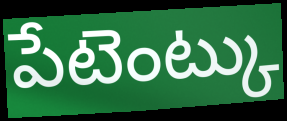
పేటెంట్కు